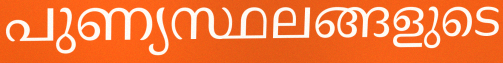
പുണ്യസ്ഥലങ്ങളുടെ